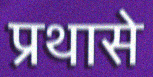
प्रथासे